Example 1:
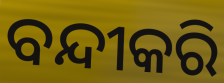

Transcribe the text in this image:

ବନ୍ଦୀକରି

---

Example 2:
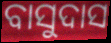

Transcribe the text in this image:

ବାସୁଦାସ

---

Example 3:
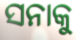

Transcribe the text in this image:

ସନାକୁ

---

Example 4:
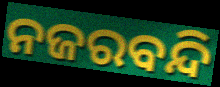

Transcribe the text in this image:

ନଜରବନ୍ଦି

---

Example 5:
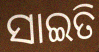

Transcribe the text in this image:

ସାଇତି